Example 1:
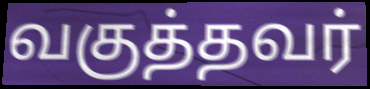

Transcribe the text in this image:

வகுத்தவர்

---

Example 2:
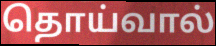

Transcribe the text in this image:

தொய்வால்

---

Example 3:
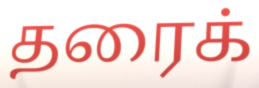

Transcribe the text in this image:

தரைக்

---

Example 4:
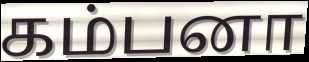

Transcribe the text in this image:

கம்பனா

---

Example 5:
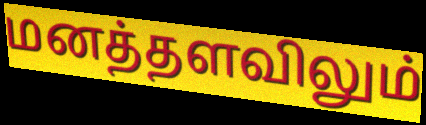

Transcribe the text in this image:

மனத்தளவிலும்